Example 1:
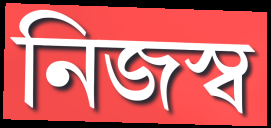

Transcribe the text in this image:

নিজস্ব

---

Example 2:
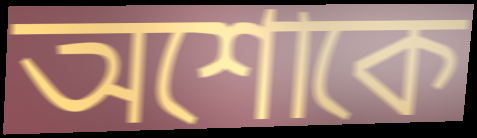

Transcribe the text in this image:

অশোকে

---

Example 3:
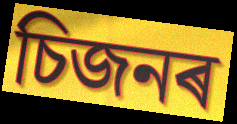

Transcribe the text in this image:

চিজনৰ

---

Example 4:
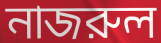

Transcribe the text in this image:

নাজৰুল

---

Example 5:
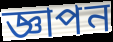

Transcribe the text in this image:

জ্ঞাপন